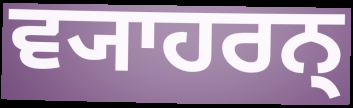
ਵ੍ਯਾਹਰਨ੍